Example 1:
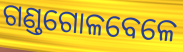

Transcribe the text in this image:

ଗଣ୍ଡଗୋଳବେଳେ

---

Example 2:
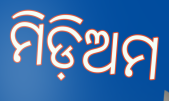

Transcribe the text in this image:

ମିଡ଼ିଅମ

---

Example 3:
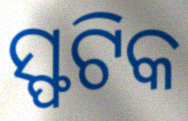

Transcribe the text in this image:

ସ୍ଫଟିକ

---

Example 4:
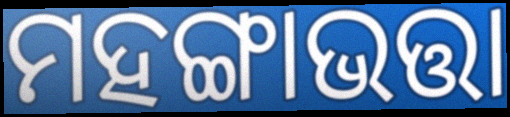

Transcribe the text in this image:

ମହଙ୍ଗାଭତ୍ତା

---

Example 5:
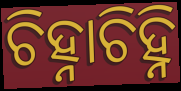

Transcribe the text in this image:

ଚିହ୍ନାଚିହ୍ନି